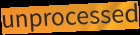
unprocessed